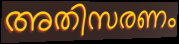
അതിസരണം